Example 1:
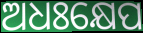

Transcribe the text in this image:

ଅଧଃକ୍ଷେପ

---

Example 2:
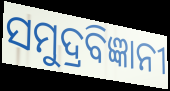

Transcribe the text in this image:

ସମୁଦ୍ରବିଜ୍ଞାନୀ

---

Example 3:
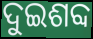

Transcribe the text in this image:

ଦୁଇଶବ୍ଦ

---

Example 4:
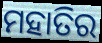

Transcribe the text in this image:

ମହାତିର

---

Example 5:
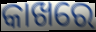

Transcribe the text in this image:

କାଖରେ